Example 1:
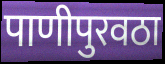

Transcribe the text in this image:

पाणीपुरवठा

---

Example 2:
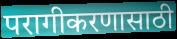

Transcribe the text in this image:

परागीकरणासाठी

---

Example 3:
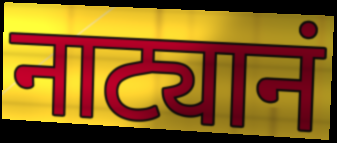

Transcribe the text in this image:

नाट्यानं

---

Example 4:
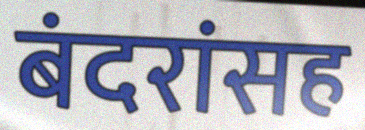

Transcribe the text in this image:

बंदरांसह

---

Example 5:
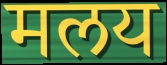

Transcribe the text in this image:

मलय